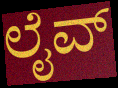
ಲೈವ್